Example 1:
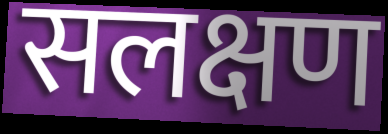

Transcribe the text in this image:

सलक्षण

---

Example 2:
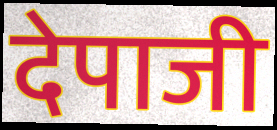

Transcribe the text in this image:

देपाजी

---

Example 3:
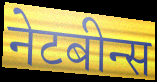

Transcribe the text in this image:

नेटबीन्स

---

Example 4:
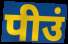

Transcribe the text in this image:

पीउं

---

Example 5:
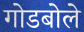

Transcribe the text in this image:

गोडबोले